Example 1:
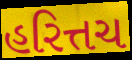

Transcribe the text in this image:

હરિત્તચ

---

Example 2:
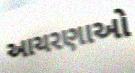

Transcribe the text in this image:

આચરણાઓ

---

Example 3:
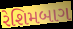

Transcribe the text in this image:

રેશિમબાગ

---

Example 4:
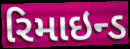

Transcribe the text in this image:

રિમાઇન્ડ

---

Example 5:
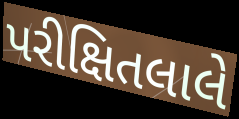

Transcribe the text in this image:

પરીક્ષિતલાલે